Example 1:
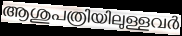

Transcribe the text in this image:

ആശുപത്രിയിലുള്ളവർ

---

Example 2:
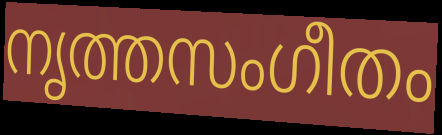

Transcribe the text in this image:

നൃത്തസംഗീതം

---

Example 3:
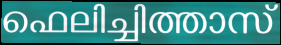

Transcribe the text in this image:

ഫെലിച്ചിത്താസ്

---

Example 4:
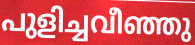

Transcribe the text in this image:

പുളിച്ചവീഞ്ഞു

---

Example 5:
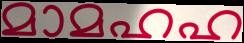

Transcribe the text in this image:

മാമഹഹ